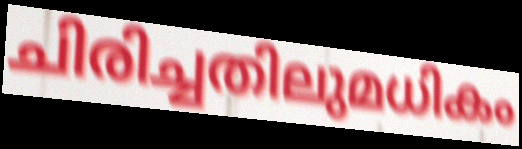
ചിരിച്ചതിലുമധികം